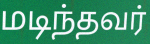
மடிந்தவர்